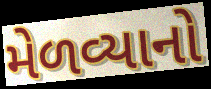
મેળવ્યાનો